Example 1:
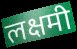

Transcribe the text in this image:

लक्षमी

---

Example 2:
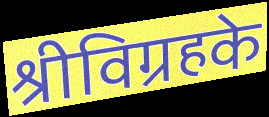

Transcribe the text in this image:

श्रीविग्रहके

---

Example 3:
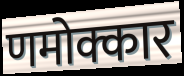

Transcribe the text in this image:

णमोक्कार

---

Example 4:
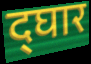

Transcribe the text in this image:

द्घार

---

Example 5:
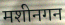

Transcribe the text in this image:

मशीनगन